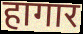
हागार